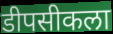
डीपसीकला